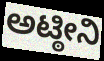
ಅಟ್ಠೀನಿ